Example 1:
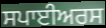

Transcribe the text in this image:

ਸਪਾਈਅਰਸ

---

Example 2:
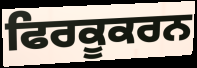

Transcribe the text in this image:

ਫਿਰਕੂਕਰਨ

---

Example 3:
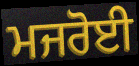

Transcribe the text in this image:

ਮਜਰੋਈ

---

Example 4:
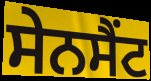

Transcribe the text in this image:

ਸੇਨਸੈਂਟ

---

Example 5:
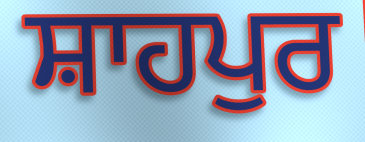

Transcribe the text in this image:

ਸ਼ਾਹਪੁਰ